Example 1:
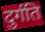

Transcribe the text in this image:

दुर्गति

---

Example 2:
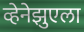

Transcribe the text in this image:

व्हेनेझुएला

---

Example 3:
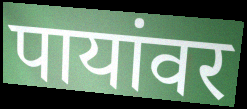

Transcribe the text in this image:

पायांवर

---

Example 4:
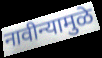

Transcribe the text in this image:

नावीन्यामुळे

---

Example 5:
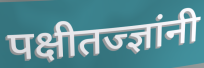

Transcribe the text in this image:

पक्षीतज्ज्ञांनी